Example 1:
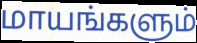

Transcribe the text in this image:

மாயங்களும்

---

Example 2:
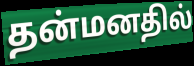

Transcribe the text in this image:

தன்மனதில்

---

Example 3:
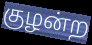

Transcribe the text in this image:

குழன்ற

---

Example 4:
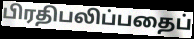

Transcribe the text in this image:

பிரதிபலிப்பதைப்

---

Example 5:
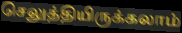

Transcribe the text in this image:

செலுத்தியிருக்கலாம்